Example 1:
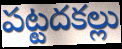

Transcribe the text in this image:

పట్టదకల్లు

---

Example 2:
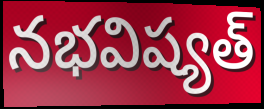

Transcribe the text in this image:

నభవిష్యత్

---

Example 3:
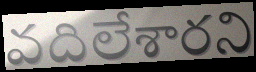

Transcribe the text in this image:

వదిలేశారని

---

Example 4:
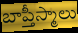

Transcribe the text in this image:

బాప్తీస్మాలు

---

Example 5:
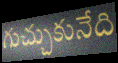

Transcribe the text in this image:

గుచ్చుకునేది